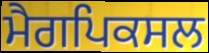
ਮੈਗਪਿਕਸਲ